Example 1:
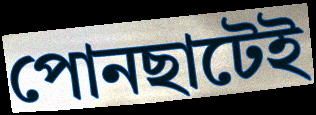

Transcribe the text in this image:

পোনছাটেই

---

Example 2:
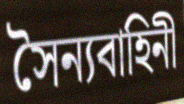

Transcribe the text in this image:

সৈন্যবাহিনী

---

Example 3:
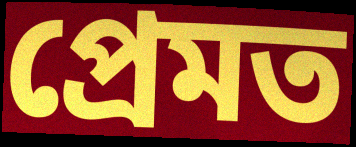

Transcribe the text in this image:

প্ৰেমত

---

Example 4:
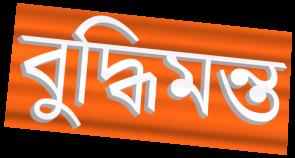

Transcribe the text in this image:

বুদ্ধিমন্ত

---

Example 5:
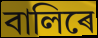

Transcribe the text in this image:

বালিৰে